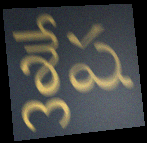
శ్లేష